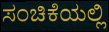
ಸಂಚಿಕೆಯಲ್ಲಿ